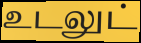
உடலுட்